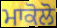
ਮਾਕੋਲੋ